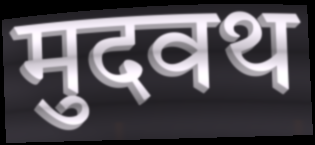
मुदवथ